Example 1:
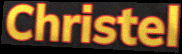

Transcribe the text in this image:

Christel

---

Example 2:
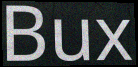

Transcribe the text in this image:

Bux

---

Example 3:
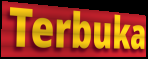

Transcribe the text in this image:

Terbuka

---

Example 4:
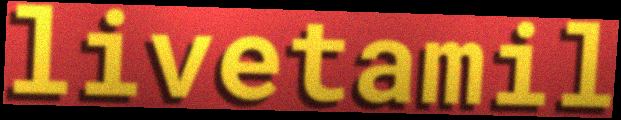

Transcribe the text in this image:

livetamil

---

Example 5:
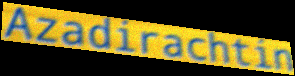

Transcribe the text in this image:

Azadirachtin